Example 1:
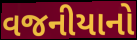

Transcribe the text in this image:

વજનીયાનો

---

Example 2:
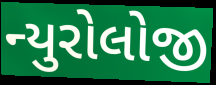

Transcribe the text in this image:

ન્યુરોલોજી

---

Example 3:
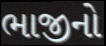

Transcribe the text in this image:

ભાજીનો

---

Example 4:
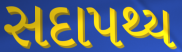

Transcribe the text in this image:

સદાપથ્ય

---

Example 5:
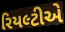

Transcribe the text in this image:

રિયલ્ટીએ